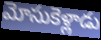
మోసుకెళ్లాడు